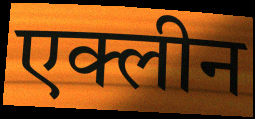
एक्लीन